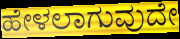
ಹೇಳಲಾಗುವುದೇ